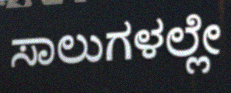
ಸಾಲುಗಳಲ್ಲೇ